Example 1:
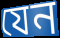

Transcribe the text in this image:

যেন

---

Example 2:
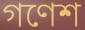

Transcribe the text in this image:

গণেশ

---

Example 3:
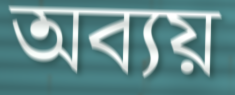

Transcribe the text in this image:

অব্যয়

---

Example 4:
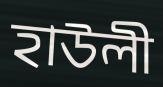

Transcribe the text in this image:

হাউলী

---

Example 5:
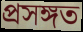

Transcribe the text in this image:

প্ৰসঙ্গত